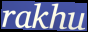
rakhu